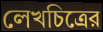
লেখচিত্রের